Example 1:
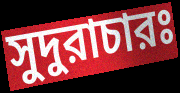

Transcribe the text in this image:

সুদুরাচারঃ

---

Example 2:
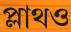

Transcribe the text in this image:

প্লাথও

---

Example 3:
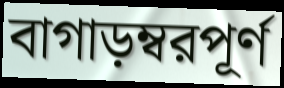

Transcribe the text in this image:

বাগাড়ম্বরপূর্ণ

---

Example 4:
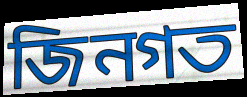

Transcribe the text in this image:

জিনগত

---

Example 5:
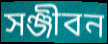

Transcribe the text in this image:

সঞ্জীবন